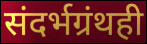
संदर्भग्रंथही